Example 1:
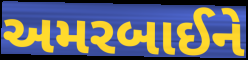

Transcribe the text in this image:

અમરબાઈને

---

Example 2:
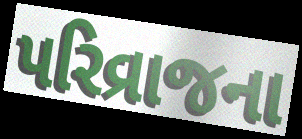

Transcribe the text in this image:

પરિવ્રાજના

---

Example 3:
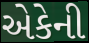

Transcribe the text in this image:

એકેની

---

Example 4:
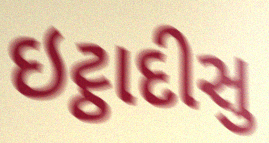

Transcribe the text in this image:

ઇટ્ઠાદીસુ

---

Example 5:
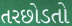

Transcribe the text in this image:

તરછોડતો